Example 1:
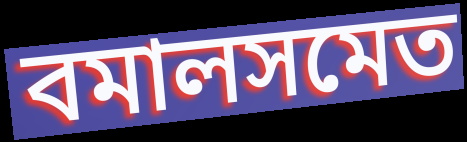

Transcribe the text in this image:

বমালসমেত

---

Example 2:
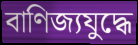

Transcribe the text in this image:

বাণিজ্যযুদ্ধে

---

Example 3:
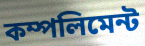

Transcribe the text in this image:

কম্পলিমেন্ট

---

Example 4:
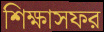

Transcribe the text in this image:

শিক্ষাসফর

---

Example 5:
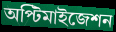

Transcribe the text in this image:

অপ্টিমাইজেশন